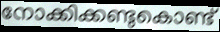
നോക്കിക്കണ്ടുകൊണ്ട്